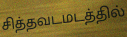
சித்தவடமடத்தில்